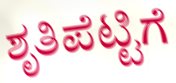
ಶೃತಿಪೆಟ್ಟಿಗೆ